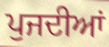
ਪੁਜਦੀਆਂ